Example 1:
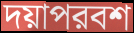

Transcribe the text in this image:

দয়াপরবশ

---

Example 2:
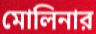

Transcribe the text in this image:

মোলিনার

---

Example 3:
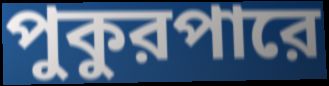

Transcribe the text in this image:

পুকুরপারে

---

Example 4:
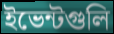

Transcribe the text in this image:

ইভেন্টগুলি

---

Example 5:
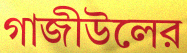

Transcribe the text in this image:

গাজীউলের